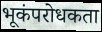
भूकंपरोधकता